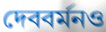
দেববর্মনও